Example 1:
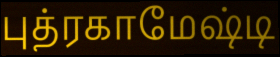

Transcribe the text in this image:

புத்ரகாமேஷ்டி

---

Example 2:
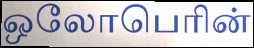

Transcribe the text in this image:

ஒலோபெரின்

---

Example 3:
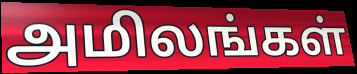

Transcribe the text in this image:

அமிலங்கள்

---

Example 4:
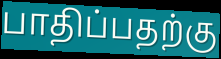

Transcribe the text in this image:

பாதிப்பதற்கு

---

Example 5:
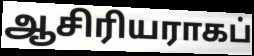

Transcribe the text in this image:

ஆசிரியராகப்